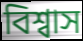
বিশ্বাস